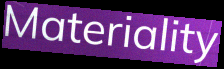
Materiality